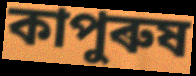
কাপুৰুষ